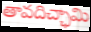
తావదిచ్ఛామి